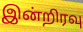
இன்றிரவு